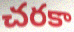
చరకా